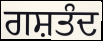
ਗਸ਼ਤੰਦ